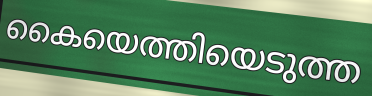
കൈയെത്തിയെടുത്ത